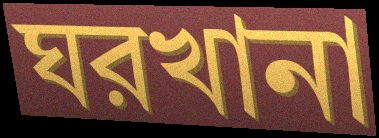
ঘরখানা